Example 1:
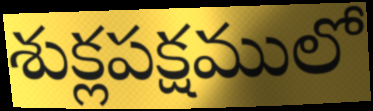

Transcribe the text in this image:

శుక్లపక్షములో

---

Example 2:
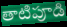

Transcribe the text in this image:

తాటిపూడి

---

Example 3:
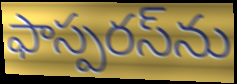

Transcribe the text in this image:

ఫాస్పరస్‌ను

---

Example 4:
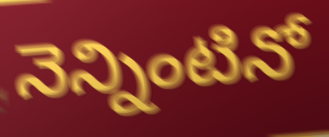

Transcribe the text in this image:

నెన్నింటినో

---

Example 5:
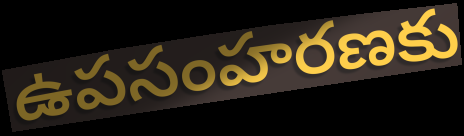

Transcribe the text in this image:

ఉపసంహరణకు